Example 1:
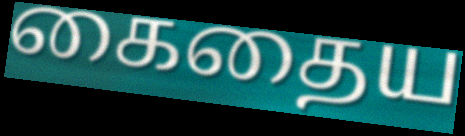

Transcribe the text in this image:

கைதைய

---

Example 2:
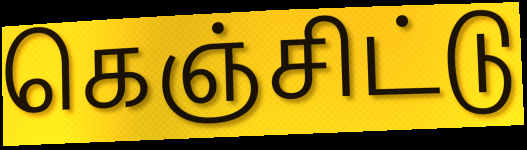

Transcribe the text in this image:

கெஞ்சிட்டு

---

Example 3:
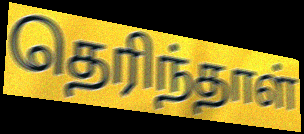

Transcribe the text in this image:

தெரிந்தாள்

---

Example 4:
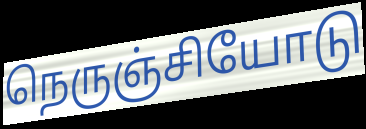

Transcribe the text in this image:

நெருஞ்சியோடு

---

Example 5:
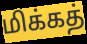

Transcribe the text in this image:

மிக்கத்